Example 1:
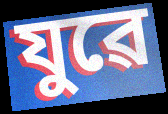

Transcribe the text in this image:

যুৱে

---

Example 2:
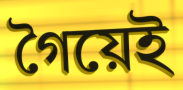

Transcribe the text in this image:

গৈয়েই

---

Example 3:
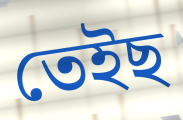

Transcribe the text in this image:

তেইছ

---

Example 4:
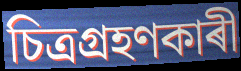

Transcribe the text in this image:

চিত্ৰগ্ৰহণকাৰী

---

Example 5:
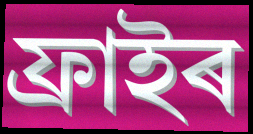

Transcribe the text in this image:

ফ্ৰাইৰ